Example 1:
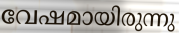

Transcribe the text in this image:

വേഷമായിരുന്നു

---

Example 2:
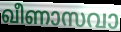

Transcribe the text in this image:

ഖീണാസവാ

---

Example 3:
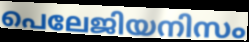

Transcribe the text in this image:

പെലേജിയനിസം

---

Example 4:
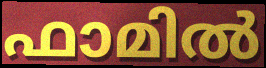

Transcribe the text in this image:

ഫാമിൽ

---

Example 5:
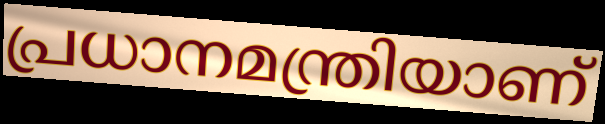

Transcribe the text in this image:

പ്രധാനമന്ത്രിയാണ്